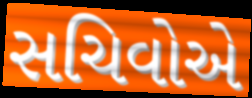
સચિવોએ